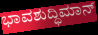
ಭಾವಶುದ್ಧಿಮಾನ್